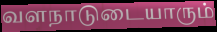
வளநாடுடையாரும்